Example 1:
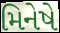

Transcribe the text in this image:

મિનેષે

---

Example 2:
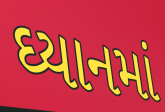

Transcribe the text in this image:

ઘ્યાનમાં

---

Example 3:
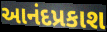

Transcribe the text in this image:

આનંદપ્રકાશ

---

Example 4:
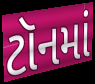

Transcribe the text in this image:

ટૉનમાં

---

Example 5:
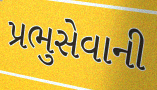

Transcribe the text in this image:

પ્રભુસેવાની